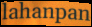
lahanpan